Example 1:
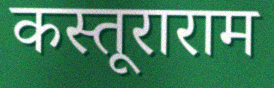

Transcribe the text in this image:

कस्तूराराम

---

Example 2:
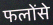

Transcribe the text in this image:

फलोंसे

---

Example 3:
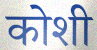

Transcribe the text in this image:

कोशी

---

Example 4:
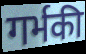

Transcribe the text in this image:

गर्भकी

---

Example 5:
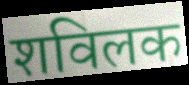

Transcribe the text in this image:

शविलक